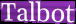
Talbot